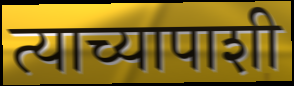
त्याच्यापाशी